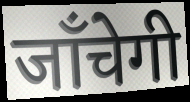
जाँचेगी